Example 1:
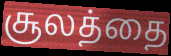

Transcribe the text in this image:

சூலத்தை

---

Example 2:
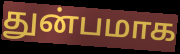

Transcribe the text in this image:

துன்பமாக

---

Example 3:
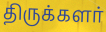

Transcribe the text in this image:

திருக்களர்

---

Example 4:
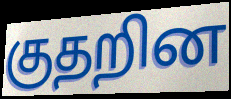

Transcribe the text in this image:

குதறின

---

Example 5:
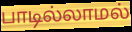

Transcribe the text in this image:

பாடில்லாமல்